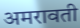
अमरावती